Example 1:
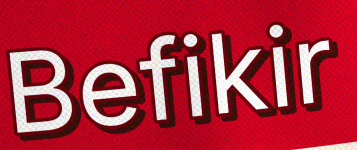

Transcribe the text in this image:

Befikir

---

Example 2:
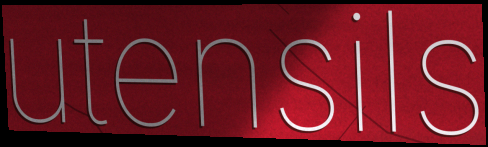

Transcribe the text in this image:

utensils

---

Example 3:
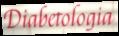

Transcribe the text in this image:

Diabetologia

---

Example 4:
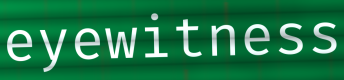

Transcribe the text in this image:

eyewitness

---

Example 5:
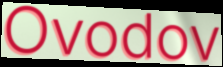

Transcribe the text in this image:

Ovodov